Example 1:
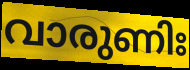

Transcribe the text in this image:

വാരുണിഃ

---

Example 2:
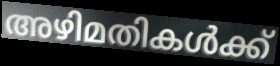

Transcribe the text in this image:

അഴിമതികൾക്ക്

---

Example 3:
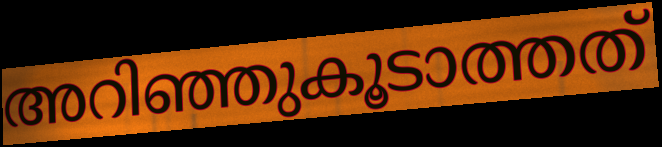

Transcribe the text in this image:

അറിഞ്ഞുകൂടാത്തത്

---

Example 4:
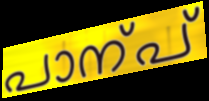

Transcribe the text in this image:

പാന്പ്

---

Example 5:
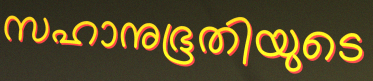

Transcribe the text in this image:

സഹാനുഭൂതിയുടെ